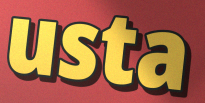
usta